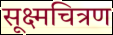
सूक्ष्मचित्रण